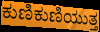
ಕುಣಿಕುಣಿಯುತ್ತ